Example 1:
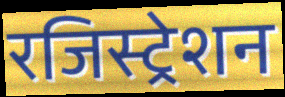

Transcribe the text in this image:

रजिस्ट्रेशन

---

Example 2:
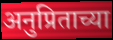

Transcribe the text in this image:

अनुप्रिताच्या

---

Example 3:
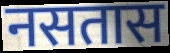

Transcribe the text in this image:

नसतास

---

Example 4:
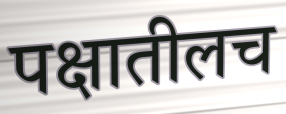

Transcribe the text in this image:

पक्षातीलच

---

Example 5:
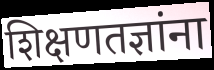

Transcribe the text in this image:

शिक्षणतज्ञांना